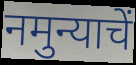
नमुन्याचें